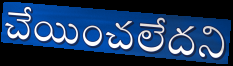
చేయించలేదని